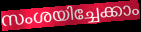
സംശയിച്ചേക്കാം